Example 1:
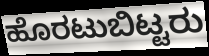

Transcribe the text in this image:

ಹೊರಟುಬಿಟ್ಟರು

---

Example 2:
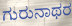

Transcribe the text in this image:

ಗುರುನಾಥರ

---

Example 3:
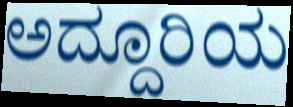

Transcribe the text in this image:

ಅದ್ದೂರಿಯ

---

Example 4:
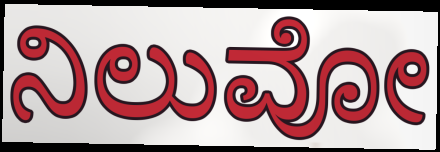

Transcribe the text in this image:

ನಿಲುವೋ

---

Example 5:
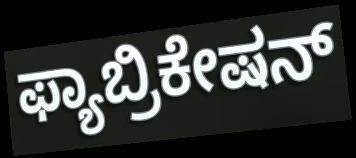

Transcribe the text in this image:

ಫ್ಯಾಬ್ರಿಕೇಷನ್